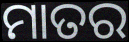
ମାତର